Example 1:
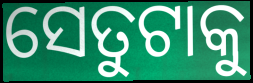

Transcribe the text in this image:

ସେତୁଟାକୁ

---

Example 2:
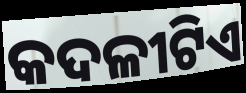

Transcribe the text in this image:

କଦଳୀଟିଏ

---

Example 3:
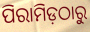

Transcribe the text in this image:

ପିରାମିଡ଼ଠାରୁ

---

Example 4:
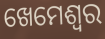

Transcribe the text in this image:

ଖେମେଶ୍ଵର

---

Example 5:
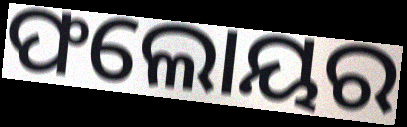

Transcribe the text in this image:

ଫଲୋୟର